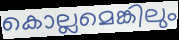
കൊല്ലമെങ്കിലും